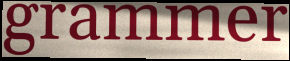
grammer